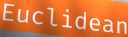
Euclidean